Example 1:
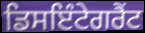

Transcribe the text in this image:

ਡਿਸਇੰਟੇਗਰੈਂਟ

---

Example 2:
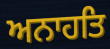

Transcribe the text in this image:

ਅਨਾਹਤਿ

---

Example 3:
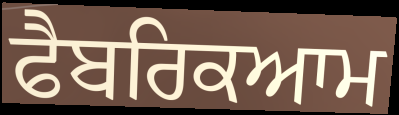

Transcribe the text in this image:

ਫੈਬਰਿਕਆਮ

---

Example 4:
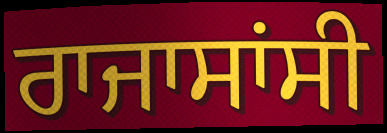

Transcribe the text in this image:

ਰਾਜਾਸਾਂਸੀ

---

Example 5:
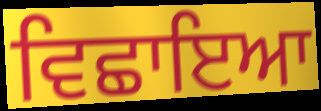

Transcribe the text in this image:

ਵਿਛਾਇਆ